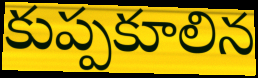
కుప్పకూలిన